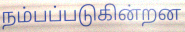
நம்பப்படுகின்றன